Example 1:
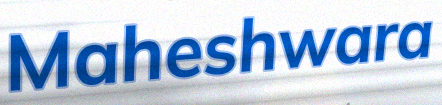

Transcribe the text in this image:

Maheshwara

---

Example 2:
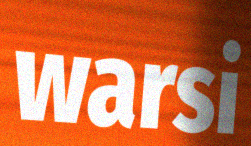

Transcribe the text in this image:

warsi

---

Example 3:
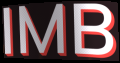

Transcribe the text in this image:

IMB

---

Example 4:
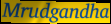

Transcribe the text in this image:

Mrudgandha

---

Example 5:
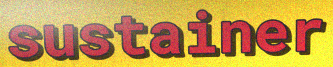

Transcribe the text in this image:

sustainer